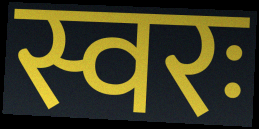
स्वरः